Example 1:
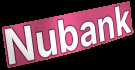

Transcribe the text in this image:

Nubank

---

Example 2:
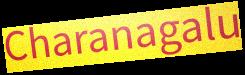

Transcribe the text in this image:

Charanagalu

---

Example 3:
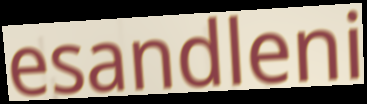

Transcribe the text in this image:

esandleni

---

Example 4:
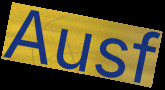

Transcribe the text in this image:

Ausf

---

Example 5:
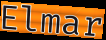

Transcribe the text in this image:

Elmar